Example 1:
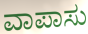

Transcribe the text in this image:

ವಾಪಾಸು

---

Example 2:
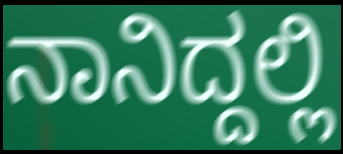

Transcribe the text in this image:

ನಾನಿದ್ದಲ್ಲಿ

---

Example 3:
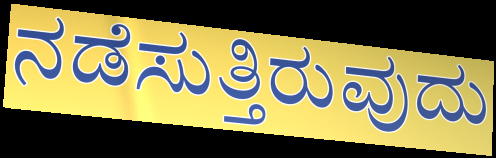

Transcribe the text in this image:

ನಡೆಸುತ್ತಿರುವುದು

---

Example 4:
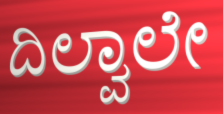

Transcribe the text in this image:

ದಿಲ್ವಾಲೇ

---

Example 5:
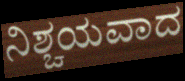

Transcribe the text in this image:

ನಿಶ್ಚಯವಾದ